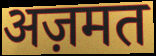
अज़मत